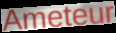
Ameteur